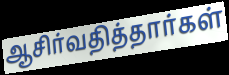
ஆசிர்வதித்தார்கள்